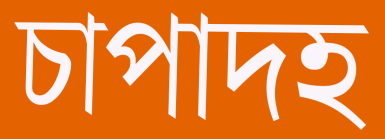
চাপাদহ